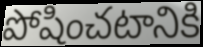
పోషించటానికి